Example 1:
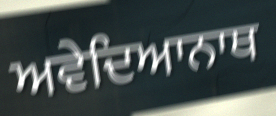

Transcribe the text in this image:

ਅਵੇਦਿਆਨਾਥ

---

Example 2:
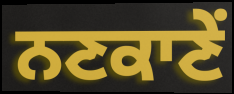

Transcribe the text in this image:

ਨਣਕਾਣੇਂ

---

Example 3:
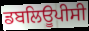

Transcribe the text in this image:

ਡਬਲਿਊਪੀਸੀ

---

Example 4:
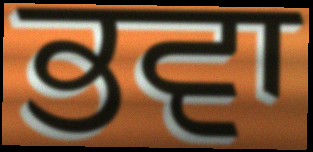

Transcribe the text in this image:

ਭਵਾ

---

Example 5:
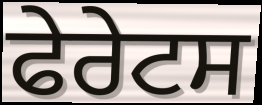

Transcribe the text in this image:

ਫੇਰੇਟਸ